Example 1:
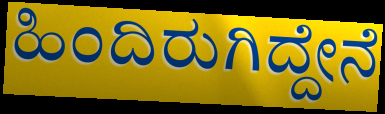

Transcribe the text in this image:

ಹಿಂದಿರುಗಿದ್ದೇನೆ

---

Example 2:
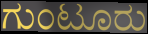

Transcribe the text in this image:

ಗುಂಟೂರು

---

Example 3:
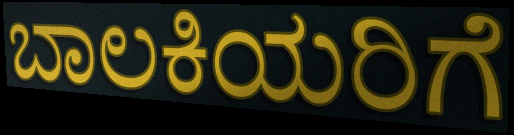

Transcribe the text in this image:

ಬಾಲಕಿಯರಿಗೆ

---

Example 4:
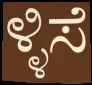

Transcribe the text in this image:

ಳ್ಳಿಸೆ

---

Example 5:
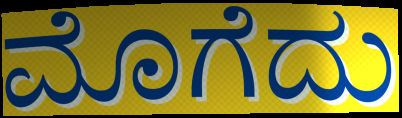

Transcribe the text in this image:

ಮೊಗೆದು